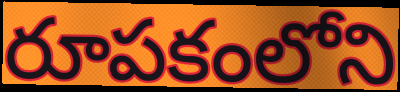
రూపకంలోని